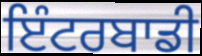
ਇੰਟਰਬਾਡੀ